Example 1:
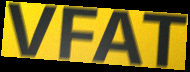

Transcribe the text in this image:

VFAT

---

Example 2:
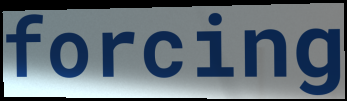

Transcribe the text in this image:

forcing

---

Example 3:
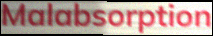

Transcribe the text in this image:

Malabsorption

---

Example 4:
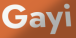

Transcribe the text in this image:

Gayi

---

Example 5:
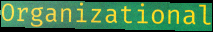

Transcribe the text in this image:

Organizational